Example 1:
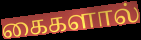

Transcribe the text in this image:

கைகளால்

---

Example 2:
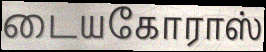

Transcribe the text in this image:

டையகோராஸ்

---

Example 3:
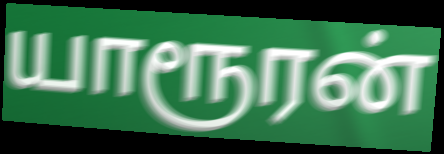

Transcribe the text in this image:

யாரூரன்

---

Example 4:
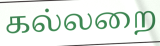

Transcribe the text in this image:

கல்லறை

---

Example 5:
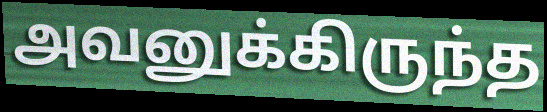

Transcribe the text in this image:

அவனுக்கிருந்த